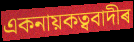
একনায়কত্ববাদীৰ